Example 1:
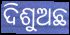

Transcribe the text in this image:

ଦିଶୁଅଛ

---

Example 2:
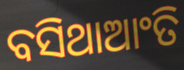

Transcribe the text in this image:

ବସିଥାଆଂତି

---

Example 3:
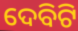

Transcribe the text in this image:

ଦେବିଟି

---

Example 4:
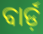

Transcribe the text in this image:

ବାର୍ଡ଼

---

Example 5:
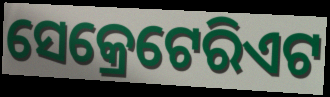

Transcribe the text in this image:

ସେକ୍ରେଟେରିଏଟ